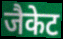
जैकेट